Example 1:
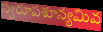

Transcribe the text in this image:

స్వరూపశూన్యమివ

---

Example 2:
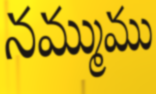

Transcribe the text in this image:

నమ్ముము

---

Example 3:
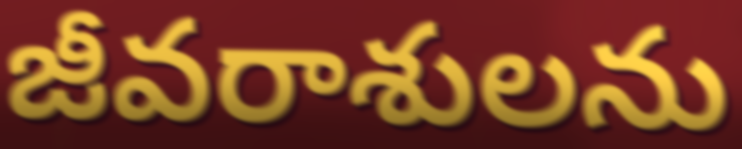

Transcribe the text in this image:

జీవరాశులను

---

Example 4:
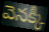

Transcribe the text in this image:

వెనక్కీ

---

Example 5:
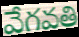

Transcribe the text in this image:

వేగవతి